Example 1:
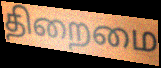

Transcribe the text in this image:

திறைமை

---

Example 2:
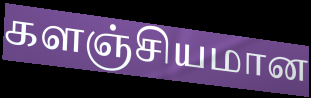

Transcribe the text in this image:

களஞ்சியமான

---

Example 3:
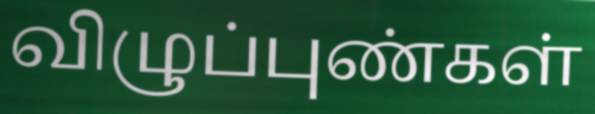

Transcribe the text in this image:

விழுப்புண்கள்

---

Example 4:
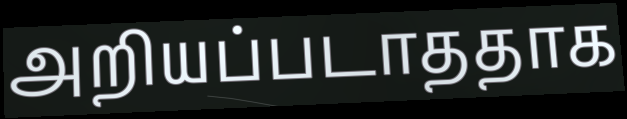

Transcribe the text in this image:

அறியப்படாததாக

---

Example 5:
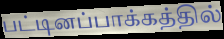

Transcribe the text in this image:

பட்டினப்பாக்கத்தில்